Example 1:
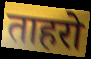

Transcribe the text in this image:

ताहरो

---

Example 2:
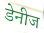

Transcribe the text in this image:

डेनीज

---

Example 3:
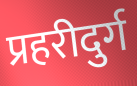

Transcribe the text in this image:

प्रहरीदुर्ग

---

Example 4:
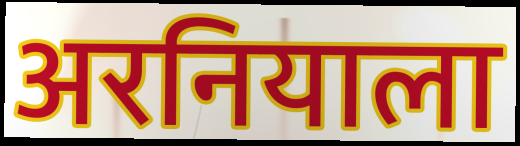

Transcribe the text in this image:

अरनियाला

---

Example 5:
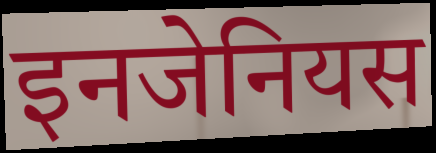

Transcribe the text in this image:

इनजेनियस